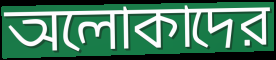
অলোকাদের